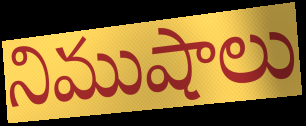
నిముషాలు